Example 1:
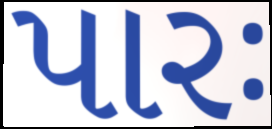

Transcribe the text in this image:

પારઃ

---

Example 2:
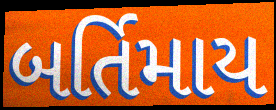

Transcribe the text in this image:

બર્તિમાય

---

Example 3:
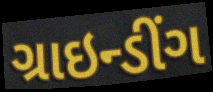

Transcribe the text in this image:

ગ્રાઇન્ડીંગ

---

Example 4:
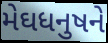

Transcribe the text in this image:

મેઘધનુષને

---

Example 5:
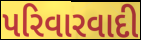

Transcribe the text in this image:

પરિવારવાદી